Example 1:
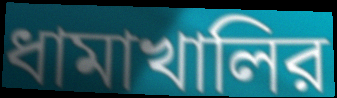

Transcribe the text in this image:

ধামাখালির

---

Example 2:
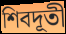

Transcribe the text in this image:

শিবদূতী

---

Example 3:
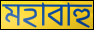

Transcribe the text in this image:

মহাবাহু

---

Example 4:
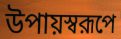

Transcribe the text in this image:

উপায়স্বরূপে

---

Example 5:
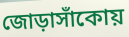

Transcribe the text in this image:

জোড়াসাঁকোয়